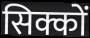
सिक्‍कों